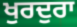
ਖੁਰਦੁਰਾ